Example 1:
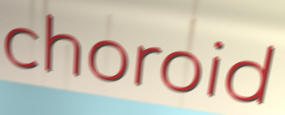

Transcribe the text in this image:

choroid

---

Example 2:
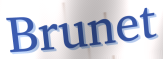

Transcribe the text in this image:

Brunet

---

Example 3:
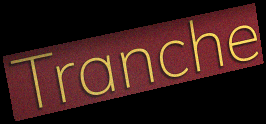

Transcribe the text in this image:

Tranche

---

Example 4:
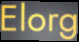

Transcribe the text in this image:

Elorg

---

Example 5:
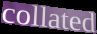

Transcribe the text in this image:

collated